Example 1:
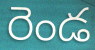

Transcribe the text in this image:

రెండ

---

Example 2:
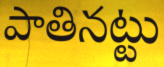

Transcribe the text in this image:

పాతినట్టు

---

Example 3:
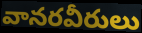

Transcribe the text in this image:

వానరవీరులు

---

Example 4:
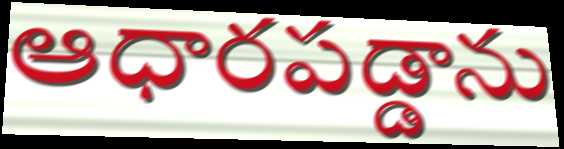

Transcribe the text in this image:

ఆధారపడ్డాను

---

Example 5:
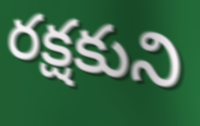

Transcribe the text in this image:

రక్షకుని